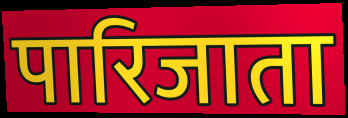
पारिजाता